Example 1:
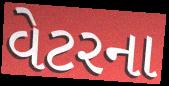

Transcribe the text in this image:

વેટરના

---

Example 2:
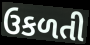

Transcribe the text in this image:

ઉકળતી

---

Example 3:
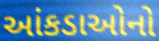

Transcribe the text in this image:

આંકડાઓનો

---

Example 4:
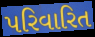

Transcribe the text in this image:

પરિવારિત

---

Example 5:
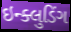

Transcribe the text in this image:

ઇન્ક્લુડિંગ